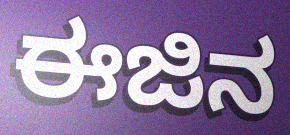
ಈಜಿನ